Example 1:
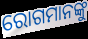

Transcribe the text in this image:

ରୋଗମାନଙ୍କୁ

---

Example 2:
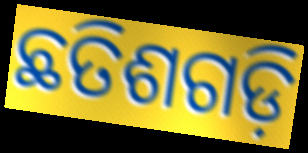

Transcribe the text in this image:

ଛତିଶଗଡ଼ି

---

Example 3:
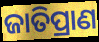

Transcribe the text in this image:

ଜାତିପ୍ରାଣ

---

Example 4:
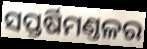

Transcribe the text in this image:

ସପ୍ତର୍ଷିମଣ୍ତଳର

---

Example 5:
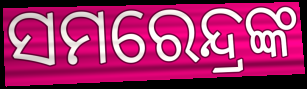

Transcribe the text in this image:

ସମରେନ୍ଦ୍ରଙ୍କ